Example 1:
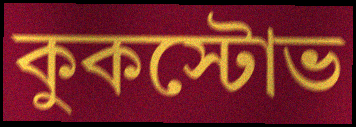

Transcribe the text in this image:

কুকস্টোভ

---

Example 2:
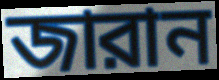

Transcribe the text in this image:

জারান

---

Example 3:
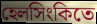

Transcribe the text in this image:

হেলসিংকিতে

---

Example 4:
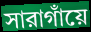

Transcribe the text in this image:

সারাগাঁয়ে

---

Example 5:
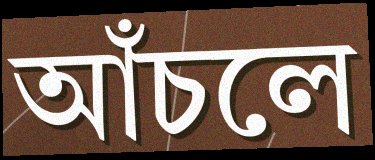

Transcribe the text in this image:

আঁচলে